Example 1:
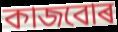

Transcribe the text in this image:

কাজবোৰ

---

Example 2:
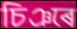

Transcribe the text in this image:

চিঞৰে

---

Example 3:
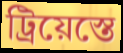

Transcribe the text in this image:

ট্ৰিয়েস্তে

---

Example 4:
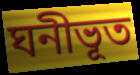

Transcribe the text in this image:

ঘনীভূত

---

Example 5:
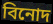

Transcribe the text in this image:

বিনোদ